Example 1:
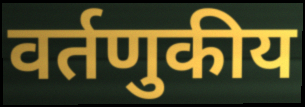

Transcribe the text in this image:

वर्तणुकीय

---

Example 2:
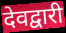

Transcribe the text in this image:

देवद्वारी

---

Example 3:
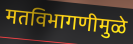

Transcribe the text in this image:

मतविभागणीमुळे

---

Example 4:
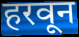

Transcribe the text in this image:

हरवून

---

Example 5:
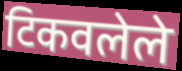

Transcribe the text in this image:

टिकवलेले